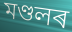
মণ্ডলৰ